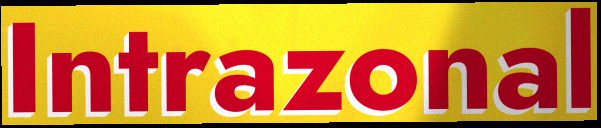
Intrazonal